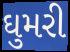
ઘુમરી